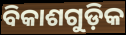
ବିକାଶଗୁଡ଼ିକ